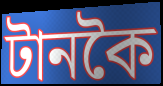
টানকৈ